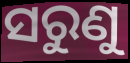
ସରୁଣୁ